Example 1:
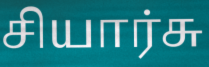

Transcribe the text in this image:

சியார்சு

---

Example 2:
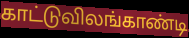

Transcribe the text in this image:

காட்டுவிலங்காண்டி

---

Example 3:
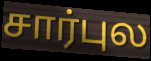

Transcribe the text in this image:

சார்புல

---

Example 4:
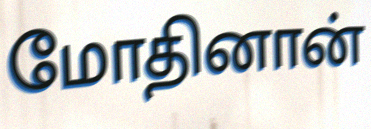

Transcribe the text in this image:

மோதினான்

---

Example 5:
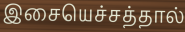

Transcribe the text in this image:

இசையெச்சத்தால்